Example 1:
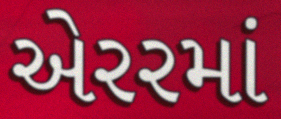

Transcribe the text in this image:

એરરમાં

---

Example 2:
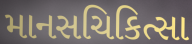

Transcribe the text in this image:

માનસચિકિત્સા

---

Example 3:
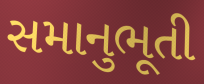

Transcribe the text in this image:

સમાનુભૂતી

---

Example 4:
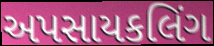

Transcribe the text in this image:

અપસાયકલિંગ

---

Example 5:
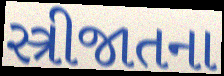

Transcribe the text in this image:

સ્ત્રીજાતના